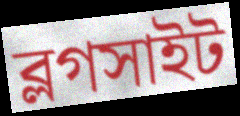
ব্লগসাইট